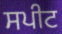
ਸਪੀਟ